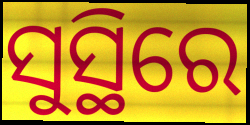
ସୁସ୍ଥିରେ